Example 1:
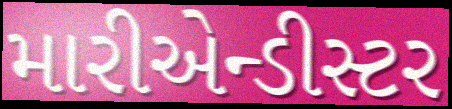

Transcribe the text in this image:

મારીએન્ડીસ્ટર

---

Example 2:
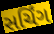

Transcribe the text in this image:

સર્ચિંગ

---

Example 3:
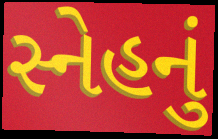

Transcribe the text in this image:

સ્નેહનું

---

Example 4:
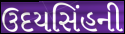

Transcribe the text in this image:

ઉદયસિંહની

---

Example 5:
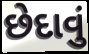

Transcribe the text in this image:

છેદાવું